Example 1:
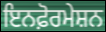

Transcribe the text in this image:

ਇਨਫ਼ੋਰਮੇਸ਼ਨ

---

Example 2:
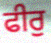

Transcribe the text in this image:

ਫੀਰੁ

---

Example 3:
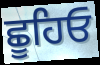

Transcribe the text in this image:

ਛੂਹਿਓ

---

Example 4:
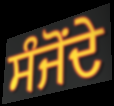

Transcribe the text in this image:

ਸੰਜੋਂਦੇ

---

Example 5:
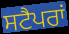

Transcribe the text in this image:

ਸਟੈਪਰਾਂ